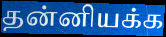
தன்னியக்க